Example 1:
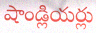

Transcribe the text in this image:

షాండ్లియర్లు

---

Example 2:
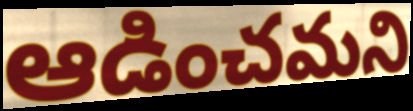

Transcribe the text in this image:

ఆడించమని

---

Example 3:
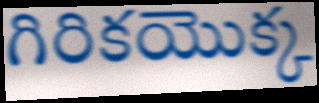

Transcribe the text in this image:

గిరికయొక్క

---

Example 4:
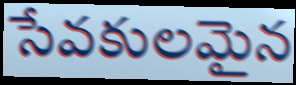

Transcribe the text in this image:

సేవకులమైన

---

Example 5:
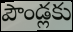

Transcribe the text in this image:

పౌండ్లకు